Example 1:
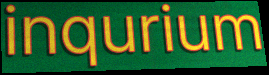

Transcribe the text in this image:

inqurium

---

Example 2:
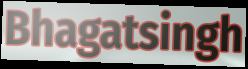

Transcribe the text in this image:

Bhagatsingh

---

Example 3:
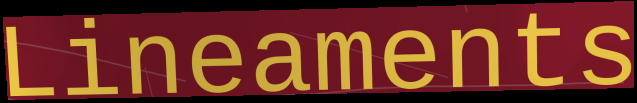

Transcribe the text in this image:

Lineaments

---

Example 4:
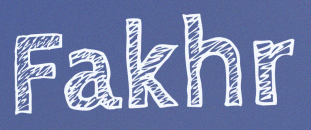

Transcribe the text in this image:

Fakhr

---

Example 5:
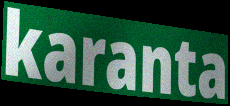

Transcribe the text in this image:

karanta